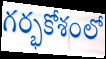
గర్భకోశంలో